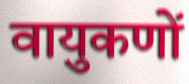
वायुकणों